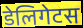
डेलिगेटस